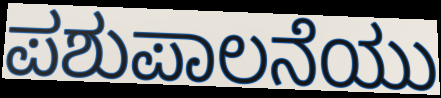
ಪಶುಪಾಲನೆಯು